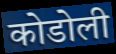
कोडोली